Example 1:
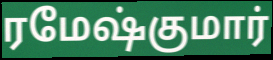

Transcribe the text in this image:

ரமேஷ்குமார்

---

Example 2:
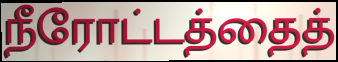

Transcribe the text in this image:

நீரோட்டத்தைத்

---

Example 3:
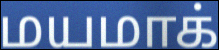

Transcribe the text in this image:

மயமாக்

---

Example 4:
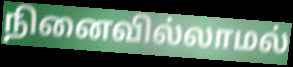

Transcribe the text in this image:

நினைவில்லாமல்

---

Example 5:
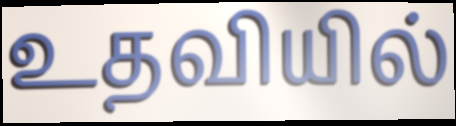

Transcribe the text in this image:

உதவியில்